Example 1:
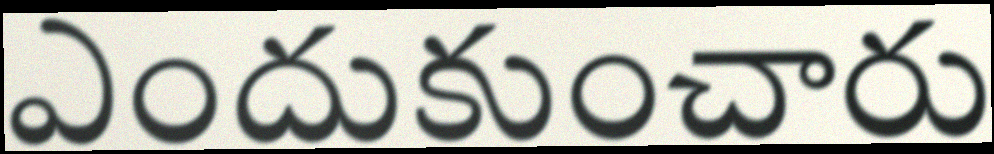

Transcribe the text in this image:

ఎందుకుంచారు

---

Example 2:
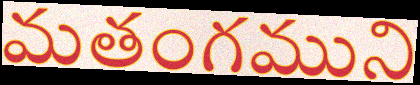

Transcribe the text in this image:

మతంగముని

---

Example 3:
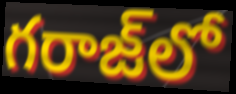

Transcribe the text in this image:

గరాజ్‌లో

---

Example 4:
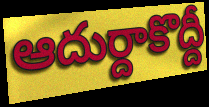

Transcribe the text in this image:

ఆదుర్దాకొద్దీ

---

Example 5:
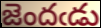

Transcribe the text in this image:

జెందఁడు